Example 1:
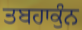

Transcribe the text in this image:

ਤਬਹਾਕੁੰਨ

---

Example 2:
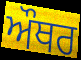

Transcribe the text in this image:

ਔਥਰ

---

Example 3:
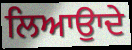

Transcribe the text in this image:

ਲਿਆਉਾਦੇ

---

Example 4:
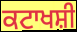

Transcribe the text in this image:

ਕਟਾਖਸ਼ੀ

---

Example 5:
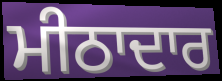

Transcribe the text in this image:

ਮੀਠਾਦਾਰ